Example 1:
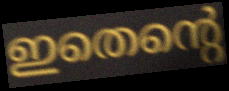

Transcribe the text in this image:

ഇതെന്റെ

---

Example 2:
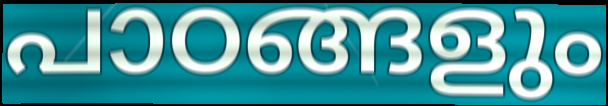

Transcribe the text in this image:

പാഠങ്ങളും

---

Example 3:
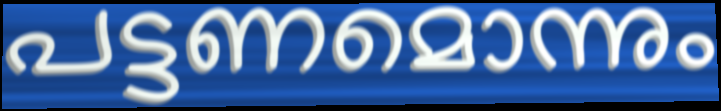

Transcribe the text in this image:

പട്ടണമൊന്നും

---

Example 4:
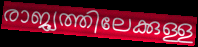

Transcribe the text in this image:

രാജ്യത്തിലേക്കുള്ള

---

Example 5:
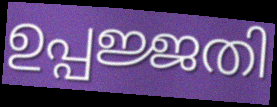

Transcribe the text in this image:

ഉപ്പജ്ജതി